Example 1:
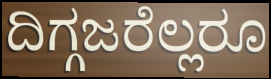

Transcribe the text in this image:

ದಿಗ್ಗಜರೆಲ್ಲರೂ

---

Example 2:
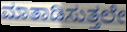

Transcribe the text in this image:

ಮಾತಾಡಿಸುತ್ತಲೇ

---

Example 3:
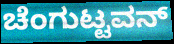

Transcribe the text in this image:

ಚೆಂಗುಟ್ಟವನ್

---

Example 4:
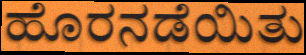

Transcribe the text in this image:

ಹೊರನಡೆಯಿತು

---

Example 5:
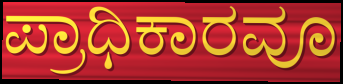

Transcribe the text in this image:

ಪ್ರಾಧಿಕಾರವೂ